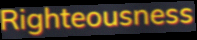
Righteousness